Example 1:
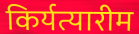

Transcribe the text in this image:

किर्यत्यारीम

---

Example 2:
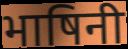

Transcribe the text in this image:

भाषिनी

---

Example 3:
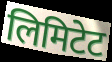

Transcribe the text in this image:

लिमिटेट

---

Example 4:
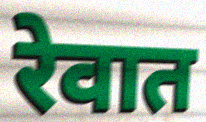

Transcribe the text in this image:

रेवात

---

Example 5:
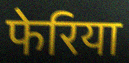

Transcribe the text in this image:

फेरिया